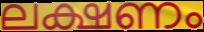
ലക്ഷണം